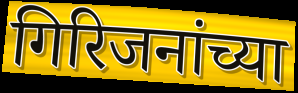
गिरिजनांच्या